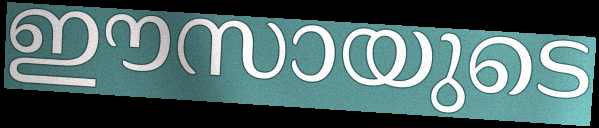
ഈസായുടെ